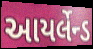
આયર્લેન્ડ